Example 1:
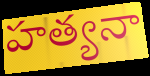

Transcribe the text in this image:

హత్యనా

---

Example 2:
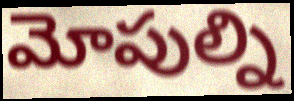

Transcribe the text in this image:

మోపుల్ని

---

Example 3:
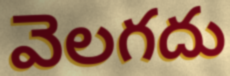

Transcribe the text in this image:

వెలగదు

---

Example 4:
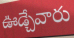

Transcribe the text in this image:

ఊడ్చేవారు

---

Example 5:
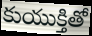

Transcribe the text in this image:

కుయుక్తితో